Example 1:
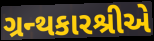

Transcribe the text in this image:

ગ્રન્થકારશ્રીએ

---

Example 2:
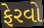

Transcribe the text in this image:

ફેરવો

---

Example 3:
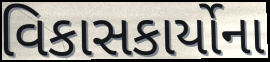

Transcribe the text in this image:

વિકાસકાર્યોના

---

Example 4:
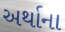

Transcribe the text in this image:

અર્થાના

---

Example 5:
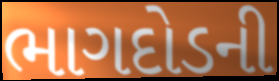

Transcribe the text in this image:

ભાગદોડની